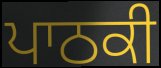
ਪਾਠਕੀ